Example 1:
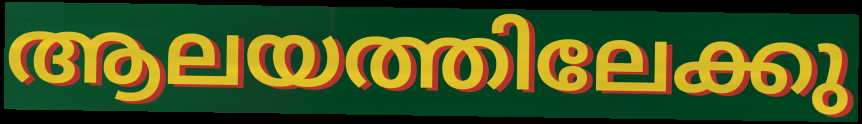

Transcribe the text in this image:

ആലയത്തിലേക്കു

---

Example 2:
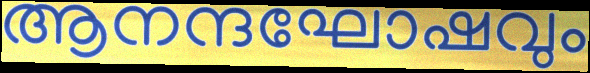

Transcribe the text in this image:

ആനന്ദഘോഷവും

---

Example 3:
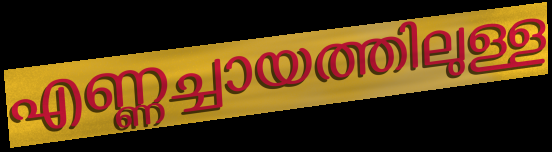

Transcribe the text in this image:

എണ്ണച്ചായത്തിലുള്ള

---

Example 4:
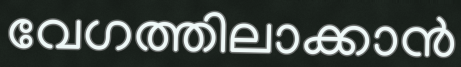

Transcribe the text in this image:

വേഗത്തിലാക്കാൻ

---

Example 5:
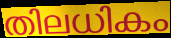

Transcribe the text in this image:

തിലധികം